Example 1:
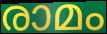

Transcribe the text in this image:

രാമം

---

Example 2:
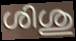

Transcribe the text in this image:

ശിശു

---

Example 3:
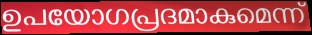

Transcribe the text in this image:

ഉപയോഗപ്രദമാകുമെന്ന്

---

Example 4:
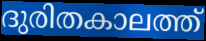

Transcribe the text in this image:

ദുരിതകാലത്ത്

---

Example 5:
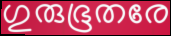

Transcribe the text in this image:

ഗുരുഭൂതരേ